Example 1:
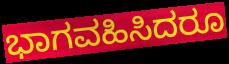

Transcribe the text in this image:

ಭಾಗವಹಿಸಿದರೂ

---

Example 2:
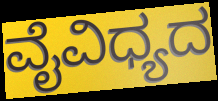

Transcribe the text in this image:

ವೈವಿಧ್ಯದ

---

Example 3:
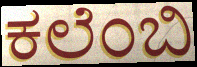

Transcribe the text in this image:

ಕಲೆಂಬಿ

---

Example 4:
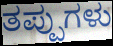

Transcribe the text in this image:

ತಪ್ಪುಗಳು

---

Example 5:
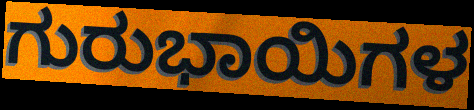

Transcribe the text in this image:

ಗುರುಭಾಯಿಗಳ